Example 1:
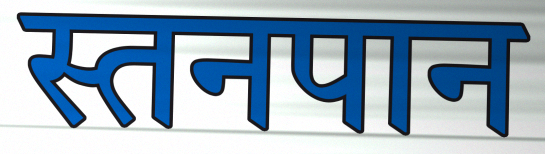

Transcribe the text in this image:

स्तनपान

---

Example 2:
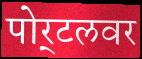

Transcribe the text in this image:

पोर्टलवर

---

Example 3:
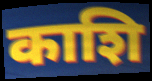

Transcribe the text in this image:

काशि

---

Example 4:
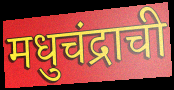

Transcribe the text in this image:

मधुचंद्राची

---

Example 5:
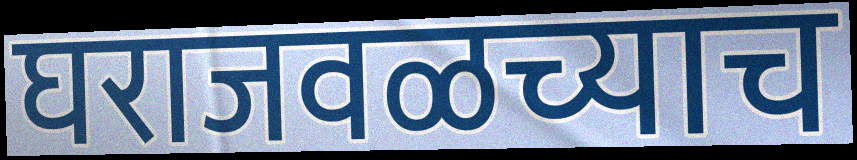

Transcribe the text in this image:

घराजवळच्याच